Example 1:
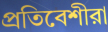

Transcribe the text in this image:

প্রতিবেশীরা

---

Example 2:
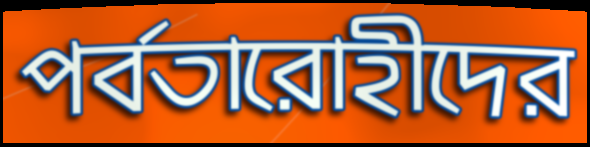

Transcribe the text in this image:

পর্বতারোহীদের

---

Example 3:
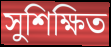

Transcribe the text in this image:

সুশিক্ষিত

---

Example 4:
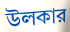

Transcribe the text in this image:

উলকার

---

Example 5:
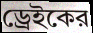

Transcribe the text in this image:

ড্রেইকের